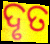
ଦୃତ